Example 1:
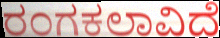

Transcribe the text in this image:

ರಂಗಕಲಾವಿದೆ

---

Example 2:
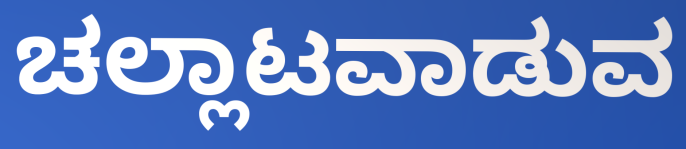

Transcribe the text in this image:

ಚಲ್ಲಾಟವಾಡುವ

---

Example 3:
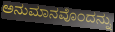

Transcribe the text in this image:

ಅನುಮಾನವೊಂದನ್ನು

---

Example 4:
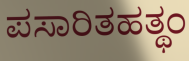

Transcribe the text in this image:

ಪಸಾರಿತಹತ್ಥಂ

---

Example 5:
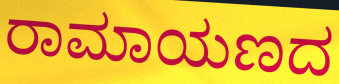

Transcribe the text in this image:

ರಾಮಾಯಣದ